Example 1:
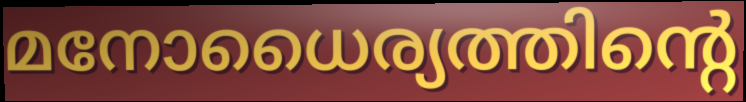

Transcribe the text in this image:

മനോധൈര്യത്തിന്റെ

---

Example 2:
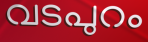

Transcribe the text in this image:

വടപുറം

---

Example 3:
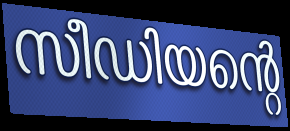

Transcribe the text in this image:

സീഡിയന്റെ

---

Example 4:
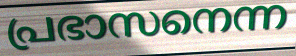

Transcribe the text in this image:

പ്രഭാസനെന്ന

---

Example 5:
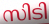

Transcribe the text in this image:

സിടി